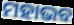
ମହାଭବ